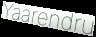
Yaarendru